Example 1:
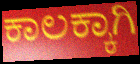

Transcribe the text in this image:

ಕಾಲಕ್ಕಾಗಿ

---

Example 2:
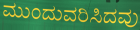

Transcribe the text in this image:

ಮುಂದುವರಿಸಿದವು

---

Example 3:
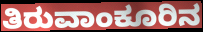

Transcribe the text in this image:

ತಿರುವಾಂಕೂರಿನ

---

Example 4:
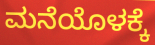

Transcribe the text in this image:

ಮನೆಯೊಳಕ್ಕೆ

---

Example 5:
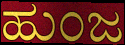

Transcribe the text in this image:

ಹುಂಜ